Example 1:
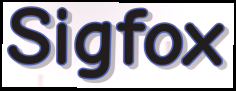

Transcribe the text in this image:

Sigfox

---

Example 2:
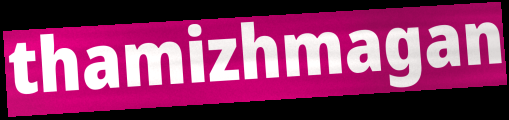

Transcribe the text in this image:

thamizhmagan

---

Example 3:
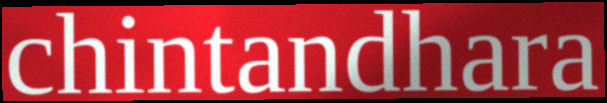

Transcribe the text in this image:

chintandhara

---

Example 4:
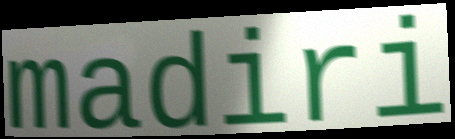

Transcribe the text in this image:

madiri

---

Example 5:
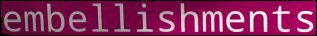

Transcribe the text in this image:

embellishments